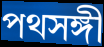
পথসঙ্গী